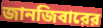
জানজিবারের